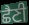
ਛੈਣੀ